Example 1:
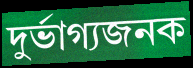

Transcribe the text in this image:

দুর্ভাগ্যজনক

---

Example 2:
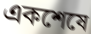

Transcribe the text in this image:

একশেষে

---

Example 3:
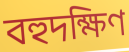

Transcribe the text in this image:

বহুদক্ষিণ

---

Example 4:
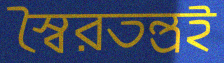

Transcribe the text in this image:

স্বৈরতন্ত্রই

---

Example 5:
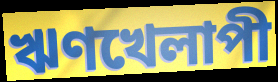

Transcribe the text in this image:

ঋণখেলাপী